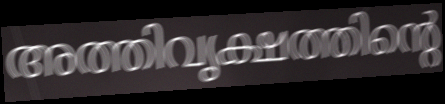
അത്തിവൃക്ഷത്തിന്റെ